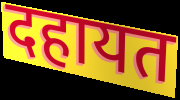
दहायत